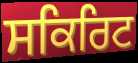
ਸਕਿਰਿਟ